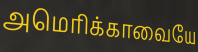
அமெரிக்காவையே